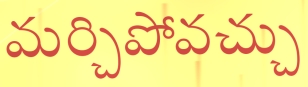
మర్చిపోవచ్చు